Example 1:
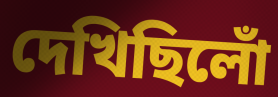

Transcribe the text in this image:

দেখিছিলোঁ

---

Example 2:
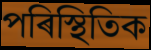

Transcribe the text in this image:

পৰিস্থিতিক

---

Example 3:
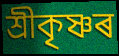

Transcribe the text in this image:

শ্ৰীকৃষ্ণৰ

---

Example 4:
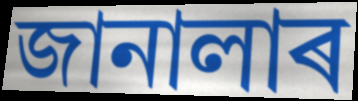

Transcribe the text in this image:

জানালাৰ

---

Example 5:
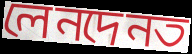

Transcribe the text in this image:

লেনদেনত